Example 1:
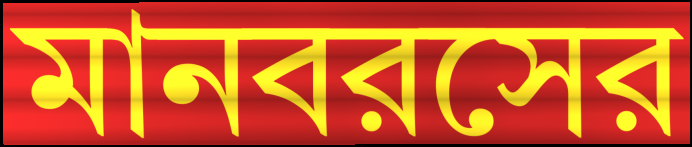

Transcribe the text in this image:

মানবরসের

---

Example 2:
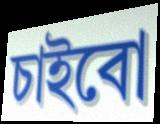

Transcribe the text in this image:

চাইবো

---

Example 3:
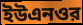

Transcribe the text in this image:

ইউএনওর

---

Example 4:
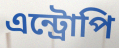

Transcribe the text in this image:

এন্ট্রোপি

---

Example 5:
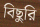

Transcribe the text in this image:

বিছুরি